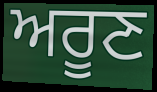
ਅਰੂਣ